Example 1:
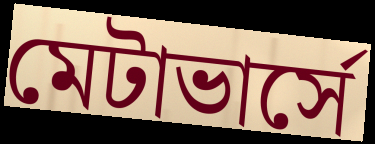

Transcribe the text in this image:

মেটাভার্সে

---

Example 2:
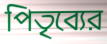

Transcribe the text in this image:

পিতৃব্যের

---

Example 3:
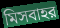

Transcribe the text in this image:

মিসবাহর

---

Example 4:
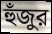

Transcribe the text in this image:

হুঁজুর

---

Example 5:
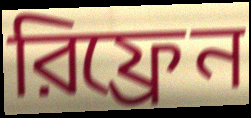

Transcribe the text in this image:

রিফ্রেন